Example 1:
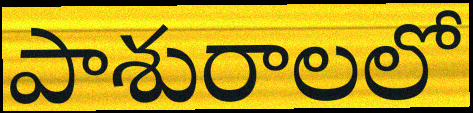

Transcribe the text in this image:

పాశురాలలో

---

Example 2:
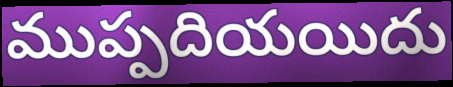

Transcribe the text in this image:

ముప్పదియయిదు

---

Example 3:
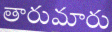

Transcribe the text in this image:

తారుమారు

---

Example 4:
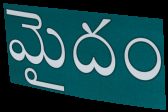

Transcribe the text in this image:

మైదం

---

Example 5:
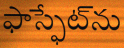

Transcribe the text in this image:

ఫాస్ఫేట్‌ను